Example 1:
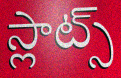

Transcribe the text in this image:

స్లాట్స్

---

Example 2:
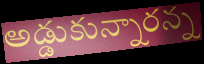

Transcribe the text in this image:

అడ్డుకున్నారన్న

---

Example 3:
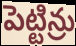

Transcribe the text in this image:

పెట్టిన్రు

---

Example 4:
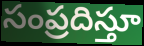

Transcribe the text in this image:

సంప్రదిస్తూ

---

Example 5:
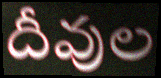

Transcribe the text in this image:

దీవుల